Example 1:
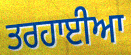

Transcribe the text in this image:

ਤਰਹਾਈਆ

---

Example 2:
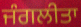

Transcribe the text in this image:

ਜੰਗਲੀਤਾ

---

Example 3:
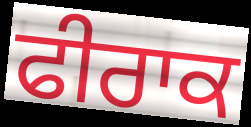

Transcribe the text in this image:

ਫੀਰਾਕ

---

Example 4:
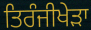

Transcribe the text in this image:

ਤਿਰੰਜੀਖੇੜਾ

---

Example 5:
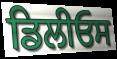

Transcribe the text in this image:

ਡਿਲੀਓਸ